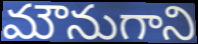
మౌనుగాని